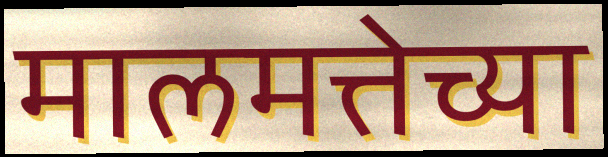
मालमत्तेच्या